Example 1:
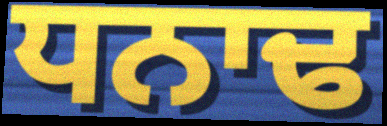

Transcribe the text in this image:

ਧਨਾਢ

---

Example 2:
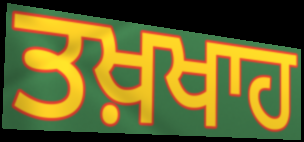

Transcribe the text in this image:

ਤਖ਼ਖਾਹ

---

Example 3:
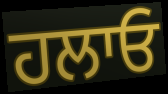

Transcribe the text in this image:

ਹਲਾਓ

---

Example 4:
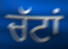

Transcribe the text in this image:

ਚੱਟਾਂ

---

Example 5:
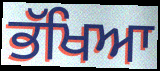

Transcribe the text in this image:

ਭੱਖਿਆ